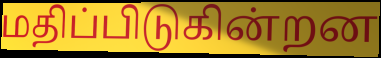
மதிப்பிடுகின்றன